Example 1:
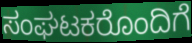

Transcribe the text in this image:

ಸಂಘಟಕರೊಂದಿಗೆ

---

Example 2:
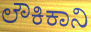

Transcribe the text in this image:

ಲೌಕಿಕಾನಿ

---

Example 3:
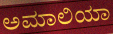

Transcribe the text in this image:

ಅಮಾಲಿಯಾ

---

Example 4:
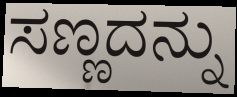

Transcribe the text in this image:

ಸಣ್ಣದನ್ನು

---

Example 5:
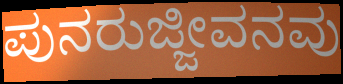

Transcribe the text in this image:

ಪುನರುಜ್ಜೀವನವು